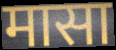
मासा